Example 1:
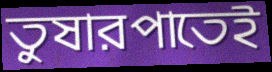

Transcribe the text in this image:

তুষারপাতেই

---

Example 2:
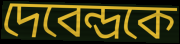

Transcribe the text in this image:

দেবেন্দ্রকে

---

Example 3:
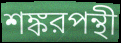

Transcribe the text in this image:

শঙ্করপন্থী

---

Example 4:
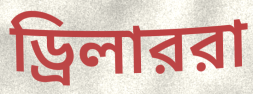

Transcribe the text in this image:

ড্রিলাররা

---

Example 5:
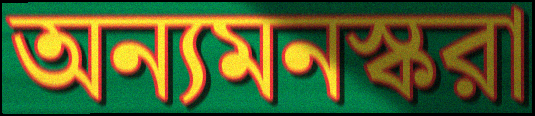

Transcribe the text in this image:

অন্যমনস্করা